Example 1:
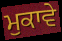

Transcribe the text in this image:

ਮੁਕਾਵੇ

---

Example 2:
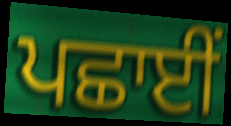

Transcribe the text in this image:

ਪਛਾਈਂ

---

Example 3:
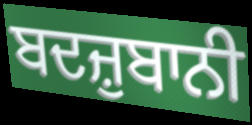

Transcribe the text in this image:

ਬਦਜ਼ੁਬਾਨੀ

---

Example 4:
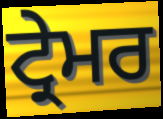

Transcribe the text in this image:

ਟ੍ਰੇਮਰ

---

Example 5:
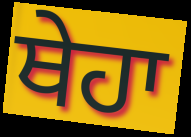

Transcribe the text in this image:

ਥੇਹਾ